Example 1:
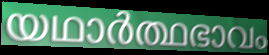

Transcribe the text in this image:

യഥാർത്ഥഭാവം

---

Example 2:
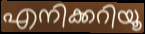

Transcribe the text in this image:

എനിക്കറിയൂ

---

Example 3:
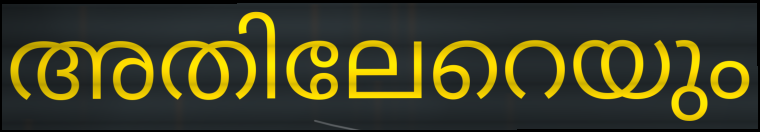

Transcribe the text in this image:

അതിലേറെയും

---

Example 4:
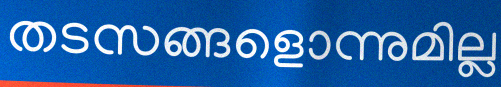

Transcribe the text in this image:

തടസങ്ങളൊന്നുമില്ല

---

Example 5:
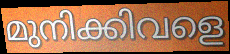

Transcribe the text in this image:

മുനിക്കിവളെ